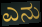
ಎನು